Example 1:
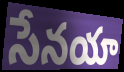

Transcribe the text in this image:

సేనయా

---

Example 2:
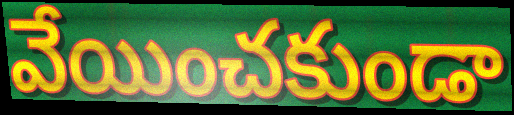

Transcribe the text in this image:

వేయించకుండా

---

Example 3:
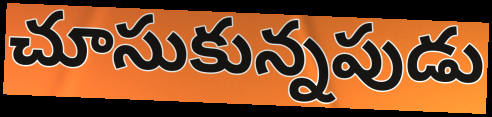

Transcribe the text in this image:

చూసుకున్నపుడు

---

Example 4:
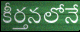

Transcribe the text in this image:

కీర్తనలోనే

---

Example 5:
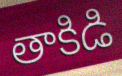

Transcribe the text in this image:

తాకిడి